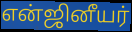
என்ஜினீயர்